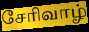
சேரிவாழ்